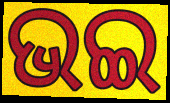
ଭଇ